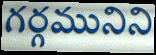
గర్గమునిని